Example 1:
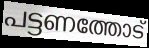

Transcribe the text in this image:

പട്ടണത്തോട്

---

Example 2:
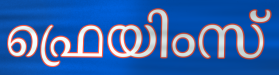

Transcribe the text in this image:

ഫ്രെയിംസ്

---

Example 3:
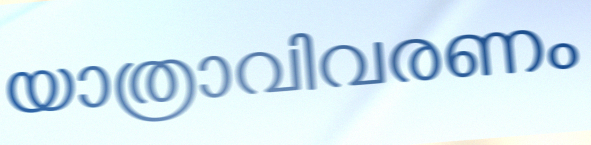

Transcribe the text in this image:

യാത്രാവിവരണം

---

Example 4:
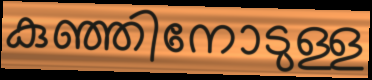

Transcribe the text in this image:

കുഞ്ഞിനോടുള്ള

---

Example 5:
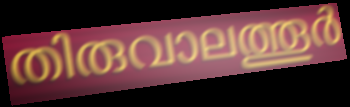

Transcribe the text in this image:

തിരുവാലത്തൂർ